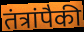
तंत्रांपैकी